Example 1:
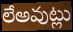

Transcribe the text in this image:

లేఅవుట్లు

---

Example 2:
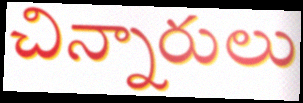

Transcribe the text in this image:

చిన్నారులు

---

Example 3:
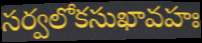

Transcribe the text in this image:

సర్వలోకసుఖావహః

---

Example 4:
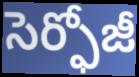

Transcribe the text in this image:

సెర్ఫోజీ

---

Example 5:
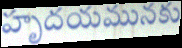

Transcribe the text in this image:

హృదయమునకు